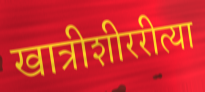
खात्रीशीररीत्या